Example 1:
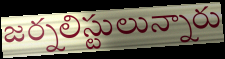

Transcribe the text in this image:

జర్నలిస్టులున్నారు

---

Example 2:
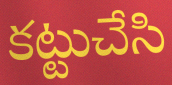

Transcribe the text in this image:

కట్టుచేసి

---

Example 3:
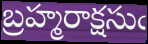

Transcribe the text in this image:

బ్రహ్మరాక్షసుఁ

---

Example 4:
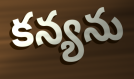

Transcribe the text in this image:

కన్యను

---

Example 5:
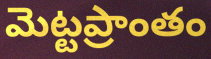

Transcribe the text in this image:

మెట్టప్రాంతం